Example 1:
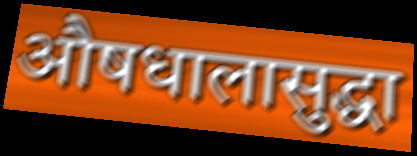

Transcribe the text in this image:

औषधालासुद्धा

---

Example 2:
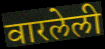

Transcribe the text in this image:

वारलेली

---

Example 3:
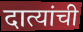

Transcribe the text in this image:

दात्यांची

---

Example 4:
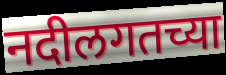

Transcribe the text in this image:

नदीलगतच्या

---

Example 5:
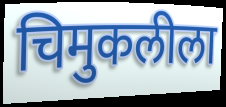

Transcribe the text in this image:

चिमुकलीला